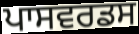
ਪਾਸਵਰਡਸ